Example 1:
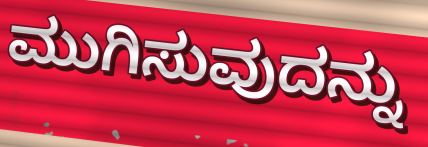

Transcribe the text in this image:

ಮುಗಿಸುವುದನ್ನು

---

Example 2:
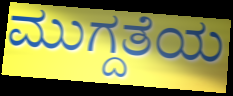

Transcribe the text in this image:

ಮುಗ್ದತೆಯ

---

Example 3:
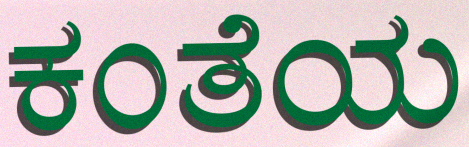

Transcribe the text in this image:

ಕಂತೆಯ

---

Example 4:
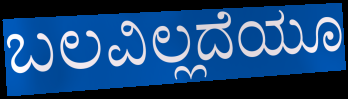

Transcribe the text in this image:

ಬಲವಿಲ್ಲದೆಯೂ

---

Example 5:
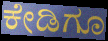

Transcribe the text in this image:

ಕೇಡಿಗೂ